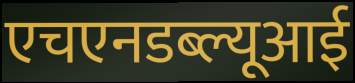
एचएनडब्ल्यूआई